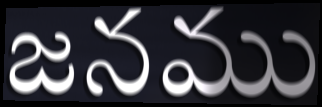
జనము